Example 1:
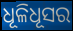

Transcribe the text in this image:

ଧୂଳିଧୂସର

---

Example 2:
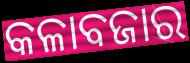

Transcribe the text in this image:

କଳାବଜାର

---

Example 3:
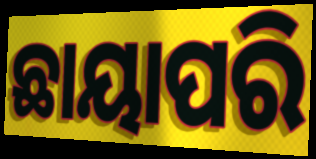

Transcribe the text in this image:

ଛାୟାପରି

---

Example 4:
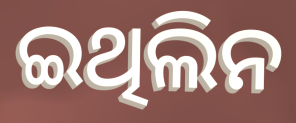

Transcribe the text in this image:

ଇଥିଲିନ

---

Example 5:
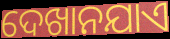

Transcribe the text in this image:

ଦେଖାନଯାଏ